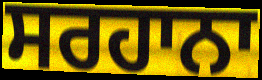
ਸਰਹਾਨਾ